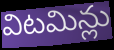
విటమిన్లు